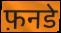
फ़नडे